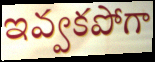
ఇవ్వకపోగా